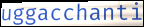
uggacchanti